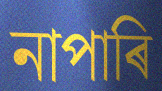
নাপাৰি